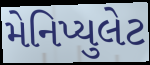
મેનિપ્યુલેટ